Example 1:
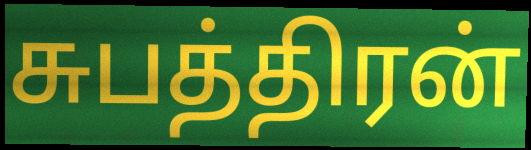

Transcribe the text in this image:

சுபத்திரன்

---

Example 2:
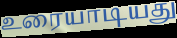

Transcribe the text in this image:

உரையாடியது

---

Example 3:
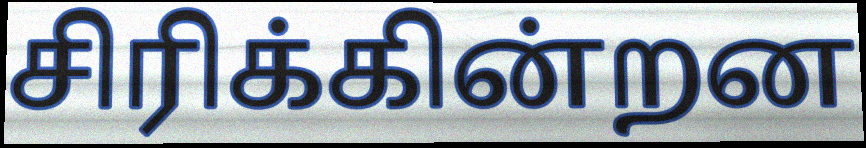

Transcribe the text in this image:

சிரிக்கின்றன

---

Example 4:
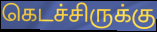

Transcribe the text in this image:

கெடச்சிருக்கு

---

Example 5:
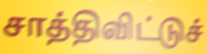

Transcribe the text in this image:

சாத்திவிட்டுச்